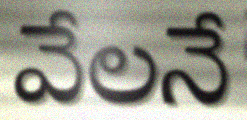
వేలనే